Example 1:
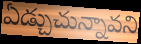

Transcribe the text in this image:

ఏడ్చుచున్నావని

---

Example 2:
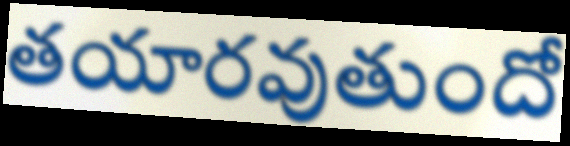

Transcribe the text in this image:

తయారవుతుందో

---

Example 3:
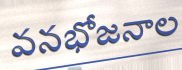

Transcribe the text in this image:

వనభోజనాల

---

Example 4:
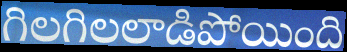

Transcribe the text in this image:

గిలగిలలాడిపోయింది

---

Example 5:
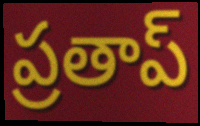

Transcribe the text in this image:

ప్రతాప్